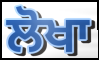
ਲੋਖਾ